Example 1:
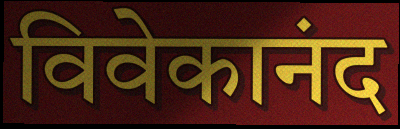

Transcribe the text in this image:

विवेकानंद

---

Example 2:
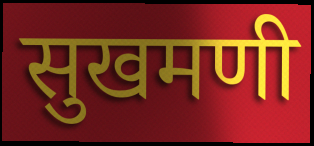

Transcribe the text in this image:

सुखमणी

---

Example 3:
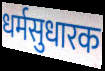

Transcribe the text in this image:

धर्मसुधारक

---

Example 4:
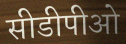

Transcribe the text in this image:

सीडीपीओ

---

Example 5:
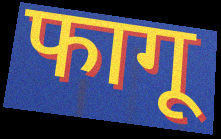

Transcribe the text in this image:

फागू